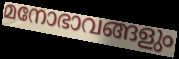
മനോഭാവങ്ങളും